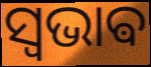
ସ୍ଵଭାଵ